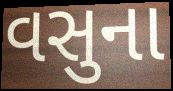
વસુના